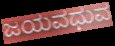
ಜಯವಧುವ